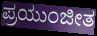
ಪ್ರಯುಂಜೀತ